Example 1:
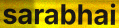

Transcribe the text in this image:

sarabhai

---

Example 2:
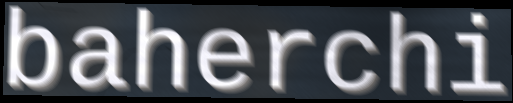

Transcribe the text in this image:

baherchi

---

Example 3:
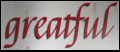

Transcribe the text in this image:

greatful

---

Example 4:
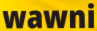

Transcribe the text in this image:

wawni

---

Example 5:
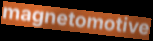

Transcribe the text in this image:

magnetomotive